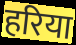
हरिया